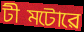
টীমটোৱে